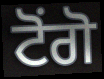
ਟੋਂਗੋ